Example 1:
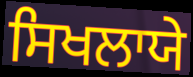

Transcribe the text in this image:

ਸਿਖਲਾਯੇ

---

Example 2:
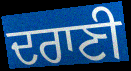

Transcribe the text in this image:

ਦਰਾਣੀ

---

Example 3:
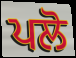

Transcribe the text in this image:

ਪਲੋ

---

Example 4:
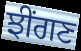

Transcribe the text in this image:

ਝੀਂਗਣ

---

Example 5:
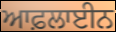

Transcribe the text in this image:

ਆਫ਼ਲਾਈਨ